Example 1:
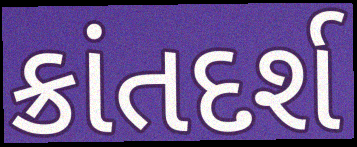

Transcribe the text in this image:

ક્રાંતદર્શ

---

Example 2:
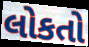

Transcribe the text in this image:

લોકતો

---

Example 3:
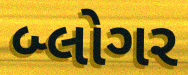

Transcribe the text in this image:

બ્લોગર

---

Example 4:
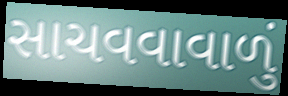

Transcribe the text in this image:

સાચવવાવાળું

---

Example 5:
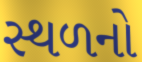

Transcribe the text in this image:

સ્થળનો